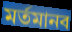
মর্তমানব